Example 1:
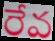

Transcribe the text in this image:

రేవ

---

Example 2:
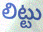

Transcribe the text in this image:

లిట్టు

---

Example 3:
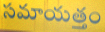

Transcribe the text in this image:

సమాయత్తం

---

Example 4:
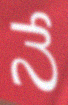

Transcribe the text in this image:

నే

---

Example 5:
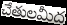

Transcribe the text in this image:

చేతులమీద